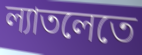
ল্যাতলেতে